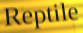
Reptile